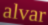
alvar